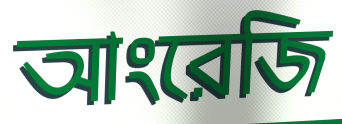
আংরেজি